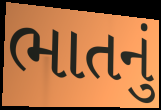
ભાતનું